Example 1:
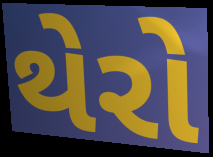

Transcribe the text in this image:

થેરો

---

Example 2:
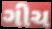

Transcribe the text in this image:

ગીચ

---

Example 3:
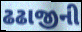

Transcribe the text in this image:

ઢઢાજીની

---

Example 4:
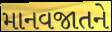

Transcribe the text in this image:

માનવજાતને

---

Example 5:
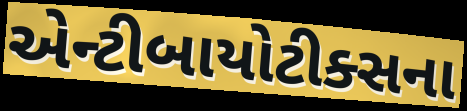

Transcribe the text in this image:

એન્ટીબાયોટીક્સના